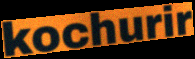
kochurir